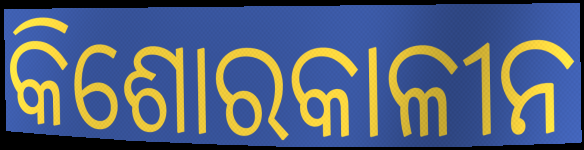
କିଶୋରକାଳୀନ